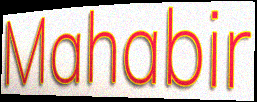
Mahabir